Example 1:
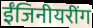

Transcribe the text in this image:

ईंजिनीयरींग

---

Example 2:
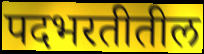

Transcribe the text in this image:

पदभरतीतील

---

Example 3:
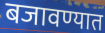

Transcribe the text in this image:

बजावण्यात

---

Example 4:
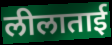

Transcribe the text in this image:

लीलाताई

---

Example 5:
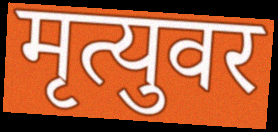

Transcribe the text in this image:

मृत्युवर